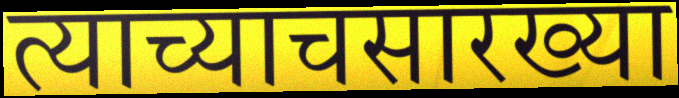
त्याच्याचसारख्या